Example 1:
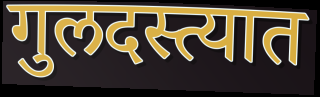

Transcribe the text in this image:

गुलदस्त्यात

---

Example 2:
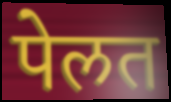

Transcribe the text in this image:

पेलत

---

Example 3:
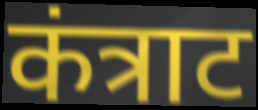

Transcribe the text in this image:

कंत्राट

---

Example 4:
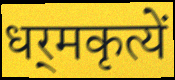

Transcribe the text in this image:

धर्मकृत्यें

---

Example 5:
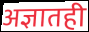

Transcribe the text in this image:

अज्ञातही